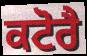
ਕਟੋਰੈ